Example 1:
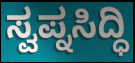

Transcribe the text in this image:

ಸ್ವಪ್ನಸಿದ್ಧಿ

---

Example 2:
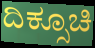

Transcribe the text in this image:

ದಿಕ್ಸೂಚಿ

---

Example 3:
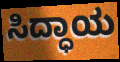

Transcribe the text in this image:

ಸಿದ್ಧಾಯ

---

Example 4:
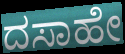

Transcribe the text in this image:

ದಸಾಹೇ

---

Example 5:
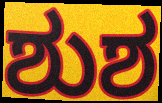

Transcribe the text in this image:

ಶುಶ